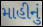
માહીનું